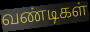
வண்டிகள்